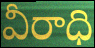
వీరాధి